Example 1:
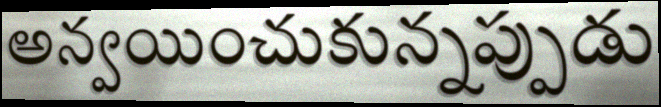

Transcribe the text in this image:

అన్వయించుకున్నప్పుడు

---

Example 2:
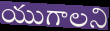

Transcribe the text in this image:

యుగాలని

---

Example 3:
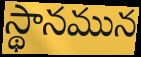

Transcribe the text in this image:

స్థానమున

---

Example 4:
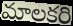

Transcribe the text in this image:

మాలకరి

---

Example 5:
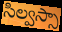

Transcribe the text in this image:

సిల్వస్సా